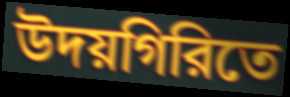
উদয়গিরিতে